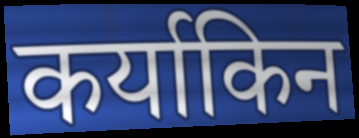
कर्याकिन